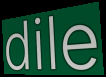
dile